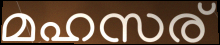
മഹസര്